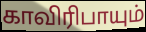
காவிரிபாயும்